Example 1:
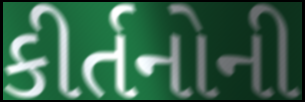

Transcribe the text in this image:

કીર્તનોની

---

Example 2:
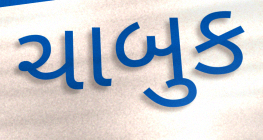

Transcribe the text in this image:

ચાબુક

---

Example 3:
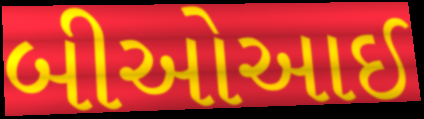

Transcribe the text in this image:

બીઓઆઈ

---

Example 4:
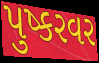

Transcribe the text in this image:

પુષ્કરવર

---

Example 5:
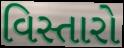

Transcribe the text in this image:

વિસ્તારો